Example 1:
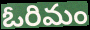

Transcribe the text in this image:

ఓరిమం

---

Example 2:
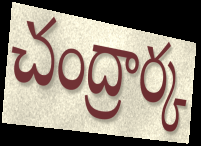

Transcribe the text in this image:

చంద్రార్క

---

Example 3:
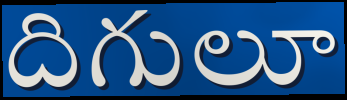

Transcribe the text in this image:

దిగులూ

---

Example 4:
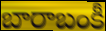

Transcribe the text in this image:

బారాబంకీ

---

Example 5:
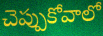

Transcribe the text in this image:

చెప్పుకోవాలో